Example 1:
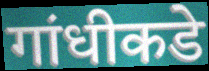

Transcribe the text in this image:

गांधीकडे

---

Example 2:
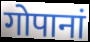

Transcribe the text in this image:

गोपानां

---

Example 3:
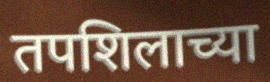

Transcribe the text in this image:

तपशिलाच्या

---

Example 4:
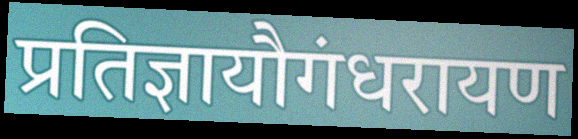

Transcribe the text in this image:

प्रतिज्ञायौगंधरायण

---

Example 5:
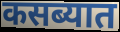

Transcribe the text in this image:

कसब्यात